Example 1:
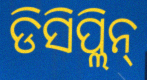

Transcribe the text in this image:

ଡିସିପ୍ଲିନ୍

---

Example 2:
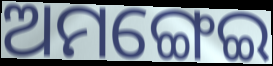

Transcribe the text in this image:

ଅମଙ୍ଗେଇ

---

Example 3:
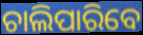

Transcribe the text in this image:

ଚାଲିପାରିବେ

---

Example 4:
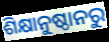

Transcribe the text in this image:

ଶିକ୍ଷାନୁଷ୍ଠାନରୁ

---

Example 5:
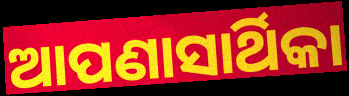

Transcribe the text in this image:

ଆପଣାସାର୍ଥିକା